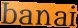
banai